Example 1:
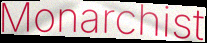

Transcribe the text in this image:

Monarchist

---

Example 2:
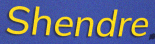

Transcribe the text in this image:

Shendre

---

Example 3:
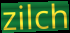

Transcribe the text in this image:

zilch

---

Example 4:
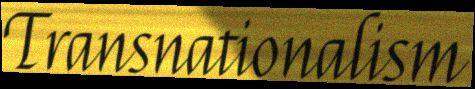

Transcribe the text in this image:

Transnationalism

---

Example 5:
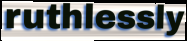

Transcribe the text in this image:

ruthlessly